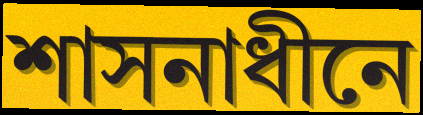
শাসনাধীনে